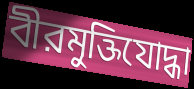
বীরমুক্তিযোদ্ধা